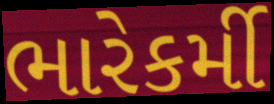
ભારેકર્મી